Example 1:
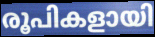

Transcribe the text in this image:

രൂപികളായി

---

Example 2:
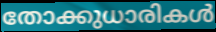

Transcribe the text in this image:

തോക്കുധാരികൾ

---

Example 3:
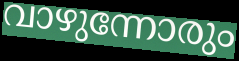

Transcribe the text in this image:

വാഴുന്നോരും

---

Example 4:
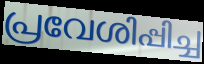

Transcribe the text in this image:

പ്രവേശിപ്പിച്ച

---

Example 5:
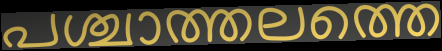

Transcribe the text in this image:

പശ്ചാത്തലത്തെ